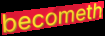
becometh